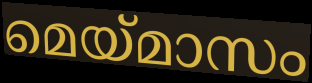
മെയ്മാസം